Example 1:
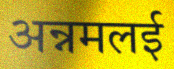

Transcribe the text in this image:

अन्नमलई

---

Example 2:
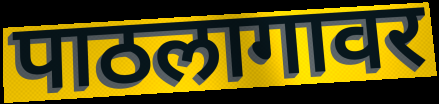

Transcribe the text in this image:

पाठलागावर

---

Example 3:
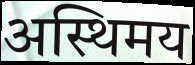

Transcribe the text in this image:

अस्थिमय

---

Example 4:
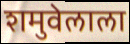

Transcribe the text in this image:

शमुवेलाला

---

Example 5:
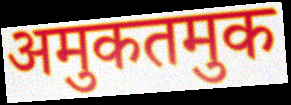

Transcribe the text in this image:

अमुकतमुक